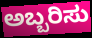
ಅಬ್ಬರಿಸು